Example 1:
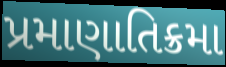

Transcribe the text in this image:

પ્રમાણાતિક્રમા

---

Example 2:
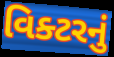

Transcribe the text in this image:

વિક્ટરનું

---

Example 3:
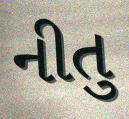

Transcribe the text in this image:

નીતુ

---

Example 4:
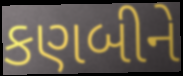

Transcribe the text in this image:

કણબીને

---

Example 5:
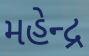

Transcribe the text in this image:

મહેન્દ્ર